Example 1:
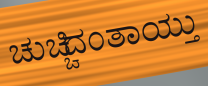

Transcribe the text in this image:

ಚುಚ್ಚಿದಂತಾಯ್ತು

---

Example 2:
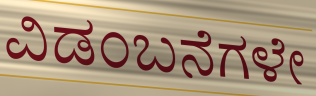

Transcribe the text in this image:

ವಿಡಂಬನೆಗಳೇ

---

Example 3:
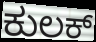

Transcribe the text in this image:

ಕುಲಕ್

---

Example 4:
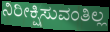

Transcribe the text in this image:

ನಿರೀಕ್ಷಿಸುವಂತಿಲ್ಲ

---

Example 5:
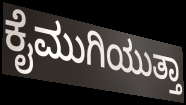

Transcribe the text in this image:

ಕೈಮುಗಿಯುತ್ತಾ